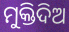
ମୁକ୍ତିଦିଅ